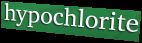
hypochlorite